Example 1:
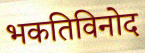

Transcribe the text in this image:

भकतिविनोद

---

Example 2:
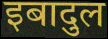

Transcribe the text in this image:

इबादुल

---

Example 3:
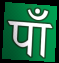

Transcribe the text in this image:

पाँ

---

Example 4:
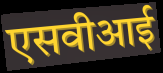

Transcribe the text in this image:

एसवीआई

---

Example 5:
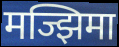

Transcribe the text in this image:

मज्झिमा